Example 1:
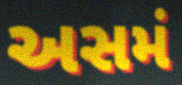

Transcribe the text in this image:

અસમં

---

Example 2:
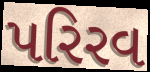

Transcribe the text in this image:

પરિરવ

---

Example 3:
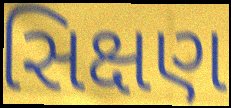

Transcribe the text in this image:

સિક્ષણ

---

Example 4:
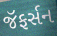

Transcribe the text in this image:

જૅફર્સન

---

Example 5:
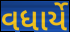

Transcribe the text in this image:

વધાર્યે